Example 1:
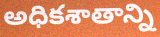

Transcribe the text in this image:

అధికశాతాన్ని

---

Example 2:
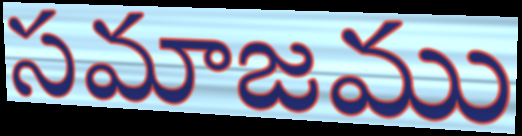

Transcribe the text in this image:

సమాజము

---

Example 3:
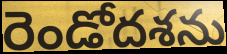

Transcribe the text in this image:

రెండోదశను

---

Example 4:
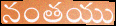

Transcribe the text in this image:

నంతయు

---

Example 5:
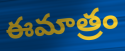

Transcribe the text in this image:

ఈమాత్రం